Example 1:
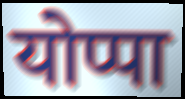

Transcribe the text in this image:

योप्पा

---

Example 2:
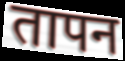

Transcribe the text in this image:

तापन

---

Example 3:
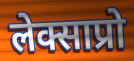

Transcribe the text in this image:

लेक्साप्रो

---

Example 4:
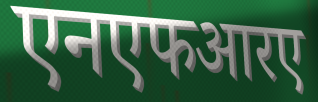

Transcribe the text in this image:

एनएफआरए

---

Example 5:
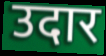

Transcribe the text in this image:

उदार